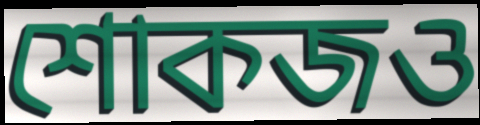
শোকজও